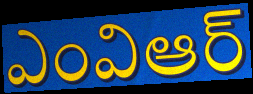
ఎంవిఆర్